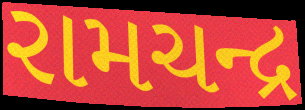
રામચન્દ્ર